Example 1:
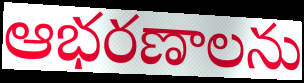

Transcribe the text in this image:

ఆభరణాలను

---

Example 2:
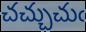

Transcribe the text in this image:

చచ్చుచుఁ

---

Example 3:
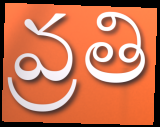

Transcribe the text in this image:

వ్రతి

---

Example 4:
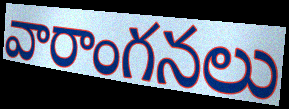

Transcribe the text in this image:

వారాంగనలు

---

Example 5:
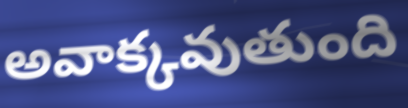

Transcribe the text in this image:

అవాక్కవుతుంది